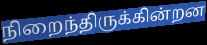
நிறைந்திருக்கின்றன